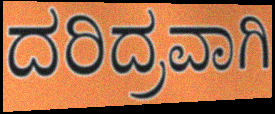
ದರಿದ್ರವಾಗಿ